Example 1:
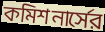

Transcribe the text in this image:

কমিশনার্সের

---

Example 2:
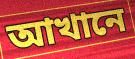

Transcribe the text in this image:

আখানে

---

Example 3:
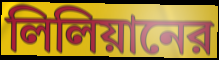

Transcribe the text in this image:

লিলিয়ানের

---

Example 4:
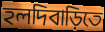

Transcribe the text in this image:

হলদিবাড়িতে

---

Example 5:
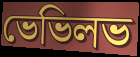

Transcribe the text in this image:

ভেভিলভ